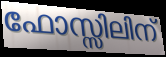
ഫോസ്സിലിന്